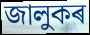
জালুকৰ